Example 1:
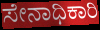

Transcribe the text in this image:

ಸೇನಾಧಿಕಾರಿ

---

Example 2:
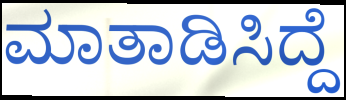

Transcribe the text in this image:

ಮಾತಾಡಿಸಿದ್ದೆ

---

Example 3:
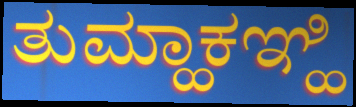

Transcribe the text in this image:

ತುಮ್ಹಾಕಞ್ಹಿ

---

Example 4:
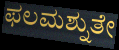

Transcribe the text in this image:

ಫಲಮಶ್ನುತೇ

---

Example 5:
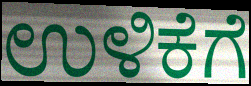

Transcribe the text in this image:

ಉಳಿಕೆಗೆ